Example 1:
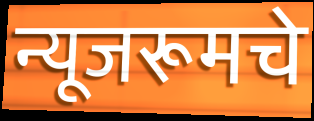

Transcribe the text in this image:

न्यूजरूमचे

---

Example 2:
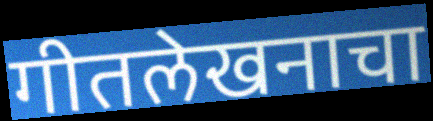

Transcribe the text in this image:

गीतलेखनाचा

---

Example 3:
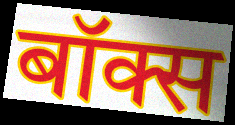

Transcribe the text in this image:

बॉक्स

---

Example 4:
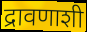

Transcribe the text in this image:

द्रावणाशी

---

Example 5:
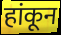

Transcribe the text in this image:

हांकून